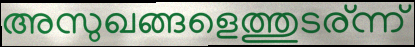
അസുഖങ്ങളെത്തുടര്ന്ന്